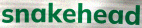
snakehead